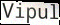
Vipul